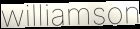
williamson